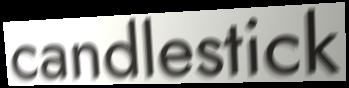
candlestick